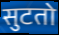
सुटतो